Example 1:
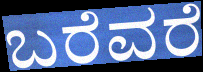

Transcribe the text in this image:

ಬರೆವರೆ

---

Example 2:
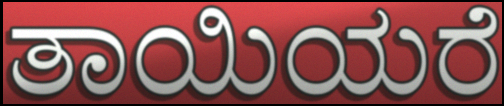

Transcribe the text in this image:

ತಾಯಿಯರೆ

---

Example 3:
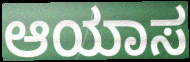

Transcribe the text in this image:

ಆಯಾಸ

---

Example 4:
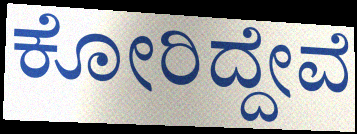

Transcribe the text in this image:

ಕೋರಿದ್ದೇವೆ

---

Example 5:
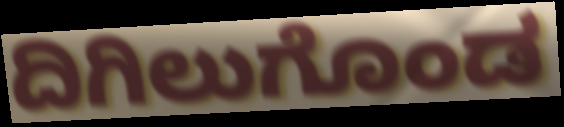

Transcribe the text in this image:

ದಿಗಿಲುಗೊಂಡ